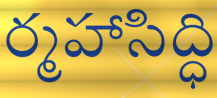
ర్మహాసిద్ధి